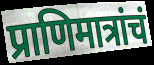
प्राणिमात्रांचं